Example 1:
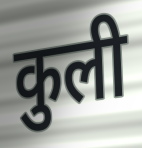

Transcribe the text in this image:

कुली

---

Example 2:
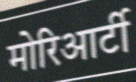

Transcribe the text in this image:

मोरिआर्टी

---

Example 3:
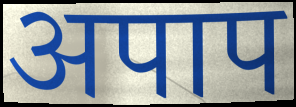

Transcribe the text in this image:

अपाप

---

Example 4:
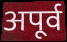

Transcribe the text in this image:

अपूर्व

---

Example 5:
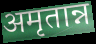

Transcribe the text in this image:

अमृतान्न